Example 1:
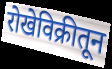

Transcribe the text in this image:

रोखेविक्रीतून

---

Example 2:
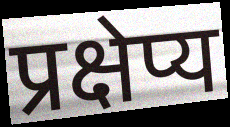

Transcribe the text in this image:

प्रक्षेप्य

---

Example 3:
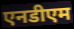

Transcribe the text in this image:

एनडीएम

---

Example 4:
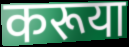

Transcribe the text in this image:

करूया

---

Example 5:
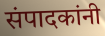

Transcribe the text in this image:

संपादकांनी